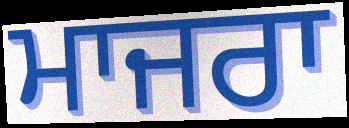
ਮਾਜਰਾ